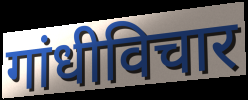
गांधीविचार